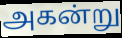
அகன்று